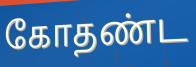
கோதண்ட